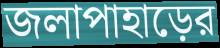
জলাপাহাড়ের